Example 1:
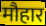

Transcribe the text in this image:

मौहार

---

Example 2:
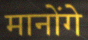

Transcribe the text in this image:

मानोंगे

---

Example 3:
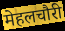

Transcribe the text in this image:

मेहलचौरी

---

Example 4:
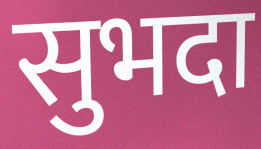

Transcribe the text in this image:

सुभदा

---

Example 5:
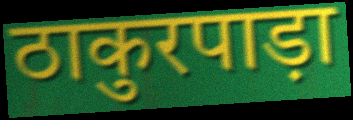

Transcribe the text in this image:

ठाकुरपाड़ा